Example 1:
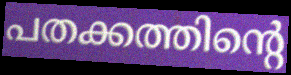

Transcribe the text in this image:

പതക്കത്തിന്റെ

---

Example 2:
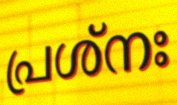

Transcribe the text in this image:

പ്രശ്നഃ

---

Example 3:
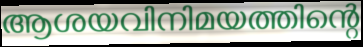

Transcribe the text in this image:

ആശയവിനിമയത്തിന്റെ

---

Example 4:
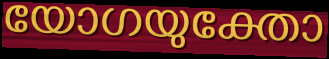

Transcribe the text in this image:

യോഗയുക്തോ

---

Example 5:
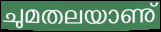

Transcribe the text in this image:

ചുമതലയാണു്